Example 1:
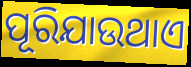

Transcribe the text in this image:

ପୂରିଯାଉଥାଏ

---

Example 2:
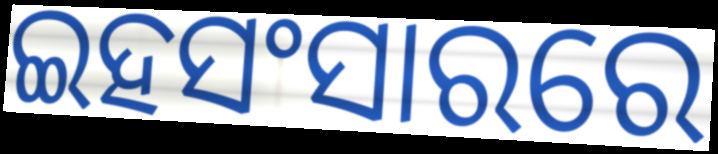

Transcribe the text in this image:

ଇହସଂସାରରେ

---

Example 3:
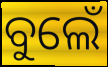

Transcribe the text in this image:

ବୁଲେଁ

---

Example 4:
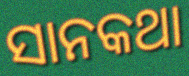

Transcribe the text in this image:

ସାନକଥା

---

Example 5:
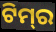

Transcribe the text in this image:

ଟିମ୍‌ର